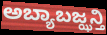
ಅಬ್ಯಾಬಜ್ಝನ್ತಿ